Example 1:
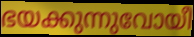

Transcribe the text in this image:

ഭയക്കുന്നുവോയീ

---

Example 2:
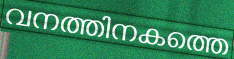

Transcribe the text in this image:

വനത്തിനകത്തെ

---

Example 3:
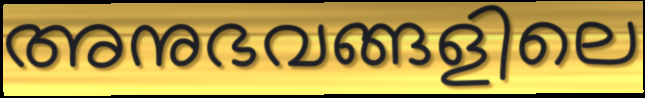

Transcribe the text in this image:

അനുഭവങ്ങളിലെ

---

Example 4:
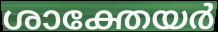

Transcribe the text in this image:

ശാക്തേയർ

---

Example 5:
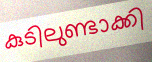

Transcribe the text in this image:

കുടിലുണ്ടാക്കി